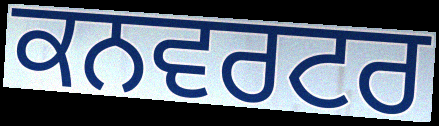
ਕਨਵਰਟਰ